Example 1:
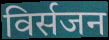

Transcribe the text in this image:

विर्सजन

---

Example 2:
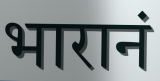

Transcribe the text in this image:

भारानं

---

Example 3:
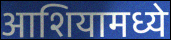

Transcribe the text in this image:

आशियामध्ये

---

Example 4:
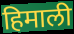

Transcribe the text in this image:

हिमाली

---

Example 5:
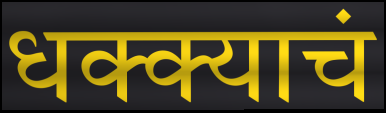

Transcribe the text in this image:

धक्क्याचं